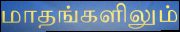
மாதங்களிலும்